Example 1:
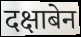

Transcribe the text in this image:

दक्षाबेन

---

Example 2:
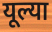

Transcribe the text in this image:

यूल्या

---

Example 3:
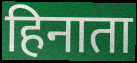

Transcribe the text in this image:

हिनाता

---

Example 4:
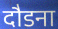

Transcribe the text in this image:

दौडना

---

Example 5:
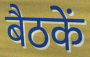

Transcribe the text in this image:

बैठकें